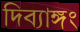
দিব্যাঙ্গং